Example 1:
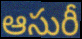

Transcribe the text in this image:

ఆసురీ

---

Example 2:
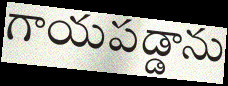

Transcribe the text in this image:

గాయపడ్డాను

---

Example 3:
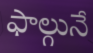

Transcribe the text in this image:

ఫాల్గునే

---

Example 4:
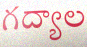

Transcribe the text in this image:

గద్యాల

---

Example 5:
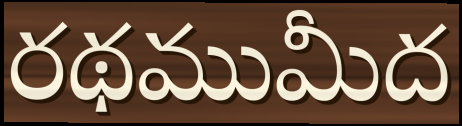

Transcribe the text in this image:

రథముమీద